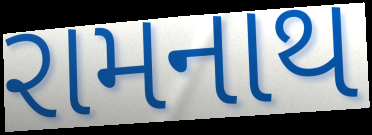
રામનાથ